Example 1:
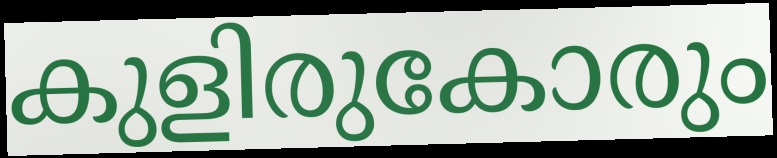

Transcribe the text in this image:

കുളിരുകോരും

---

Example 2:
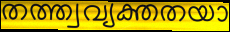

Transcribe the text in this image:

തത്ത്വവ്യക്തതയാ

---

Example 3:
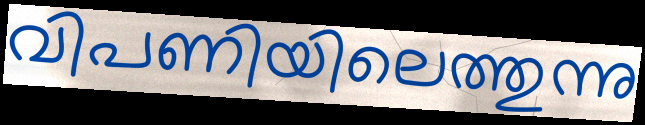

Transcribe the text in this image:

വിപണിയിലെത്തുന്നു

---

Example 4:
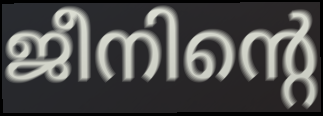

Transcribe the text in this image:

ജീനിന്റെ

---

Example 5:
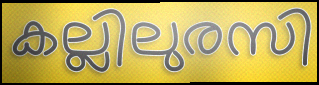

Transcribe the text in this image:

കല്ലിലുരസി